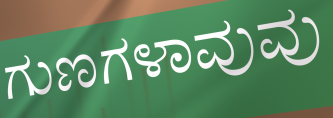
ಗುಣಗಳಾವುವು